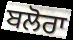
ਬਲੋਰਾ